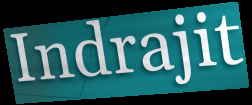
Indrajit